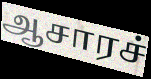
ஆசாரச்